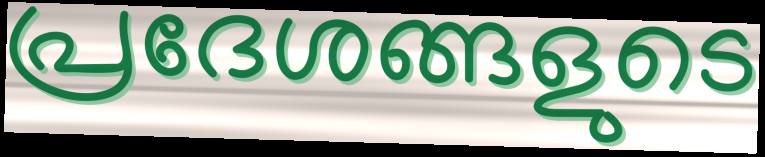
പ്രദേശങ്ങളുടെ